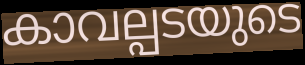
കാവല്പടയുടെ